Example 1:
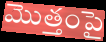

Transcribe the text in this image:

మొత్తంపై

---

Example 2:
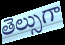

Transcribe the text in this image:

తెల్సుగా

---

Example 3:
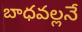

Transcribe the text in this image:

బాధవల్లనే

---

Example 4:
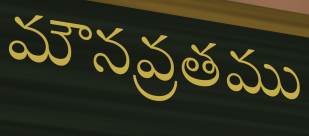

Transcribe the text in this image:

మౌనవ్రతము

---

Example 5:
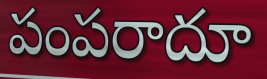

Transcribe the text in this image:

పంపరాదూ